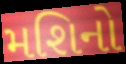
મશિનો